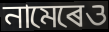
নামেৰেও